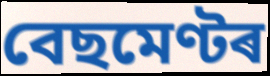
বেছমেণ্টৰ